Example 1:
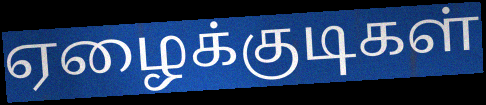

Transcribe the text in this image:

ஏழைக்குடிகள்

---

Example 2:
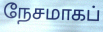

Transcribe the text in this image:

நேசமாகப்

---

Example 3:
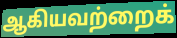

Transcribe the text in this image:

ஆகியவற்றைக்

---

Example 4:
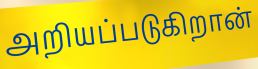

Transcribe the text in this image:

அறியப்படுகிறான்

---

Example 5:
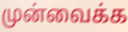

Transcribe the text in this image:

முன்வைக்க